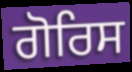
ਗੋਰਿਸ